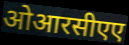
ओआरसीएए